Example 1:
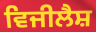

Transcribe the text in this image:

ਵਿਜੀਲੈਸ਼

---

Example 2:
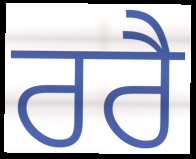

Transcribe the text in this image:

ਰਰੈ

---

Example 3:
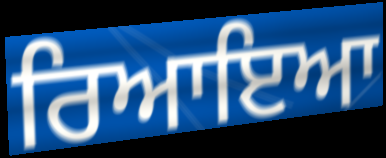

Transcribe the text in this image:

ਰਿਆਇਆ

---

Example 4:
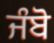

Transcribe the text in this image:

ਜੰਬੋ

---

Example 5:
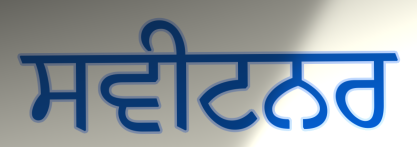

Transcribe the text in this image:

ਸਵੀਟਨਰ